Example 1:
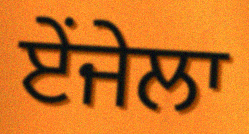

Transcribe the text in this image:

ਏਂਜੇਲਾ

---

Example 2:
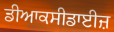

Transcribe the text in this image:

ਡੀਆਕਸੀਡਾਈਜ਼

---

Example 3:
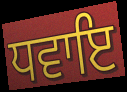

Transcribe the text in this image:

ਧਵਾਇ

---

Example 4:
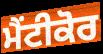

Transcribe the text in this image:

ਮੈਂਟੀਕੋਰ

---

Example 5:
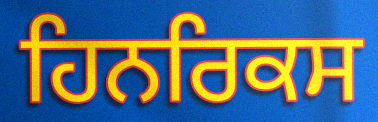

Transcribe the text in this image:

ਹਿਨਰਿਕਸ